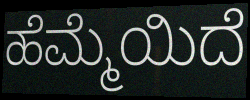
ಹೆಮ್ಮೆಯಿದೆ